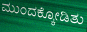
ಮುಂದಕ್ಕೋಡಿತು